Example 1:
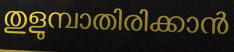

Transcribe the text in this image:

തുളുമ്പാതിരിക്കാൻ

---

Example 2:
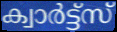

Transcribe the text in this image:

ക്വാർട്ട്സ്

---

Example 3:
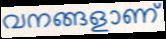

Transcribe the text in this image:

വനങ്ങളാണ്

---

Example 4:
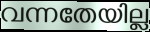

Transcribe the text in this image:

വന്നതേയില്ല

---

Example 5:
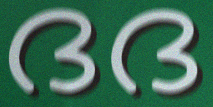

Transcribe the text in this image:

ദദ